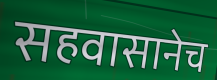
सहवासानेच